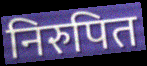
निरुपित